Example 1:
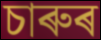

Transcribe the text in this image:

চাৰুৰ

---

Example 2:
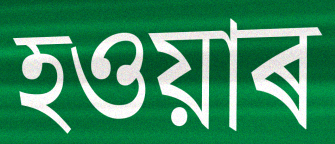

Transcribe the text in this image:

হওয়াৰ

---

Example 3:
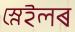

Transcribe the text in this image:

স্নেইলৰ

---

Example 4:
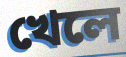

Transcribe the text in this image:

খেলে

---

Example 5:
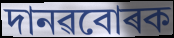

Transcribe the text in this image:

দানৱবোৰক